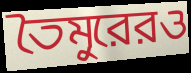
তৈমুরেরও